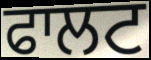
ਫਾਲਟ